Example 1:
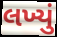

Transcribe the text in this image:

લખ્યું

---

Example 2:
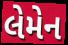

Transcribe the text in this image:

લેમેન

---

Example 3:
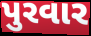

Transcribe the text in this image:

પુરવાર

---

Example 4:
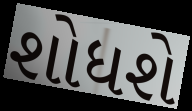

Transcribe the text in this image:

શોધશે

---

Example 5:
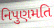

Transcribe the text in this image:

નિપુણમતિ